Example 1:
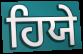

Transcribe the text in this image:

ਹਿਯੇ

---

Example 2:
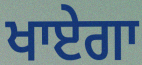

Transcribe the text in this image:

ਖਾਏਗਾ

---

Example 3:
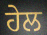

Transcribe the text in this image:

ਹੇਲ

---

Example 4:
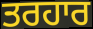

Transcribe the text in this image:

ਤਰਹਾਰ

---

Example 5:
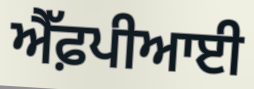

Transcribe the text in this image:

ਐੱਫ਼ਪੀਆਈ